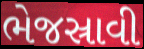
ભેજસ્રાવી